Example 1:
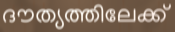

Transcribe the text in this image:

ദൗത്യത്തിലേക്ക്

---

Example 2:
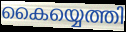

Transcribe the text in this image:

കൈയ്യെത്തി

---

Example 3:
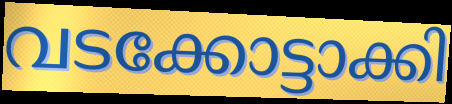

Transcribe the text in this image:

വടക്കോട്ടാക്കി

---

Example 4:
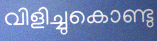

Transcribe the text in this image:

വിളിച്ചുകൊണ്ടു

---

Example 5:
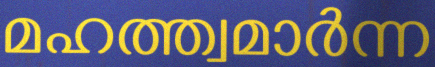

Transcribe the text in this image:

മഹത്ത്വമാർന്ന